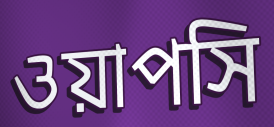
ওয়াপসি